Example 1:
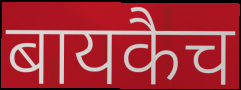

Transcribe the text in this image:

बायकैच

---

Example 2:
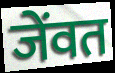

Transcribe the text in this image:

जेंवत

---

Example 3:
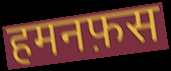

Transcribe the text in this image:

हमनफ़स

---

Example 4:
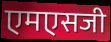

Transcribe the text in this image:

एमएसजी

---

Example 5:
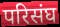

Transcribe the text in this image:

परिसंघ